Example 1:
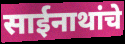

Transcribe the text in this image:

साईनाथांचे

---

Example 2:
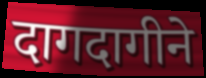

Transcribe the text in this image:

दागदागीने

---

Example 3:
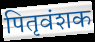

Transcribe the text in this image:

पितृवंशक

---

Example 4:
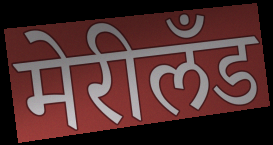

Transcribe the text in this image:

मेरीलँड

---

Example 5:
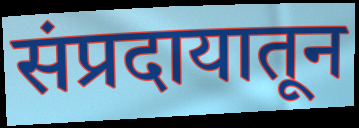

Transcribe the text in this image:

संप्रदायातून